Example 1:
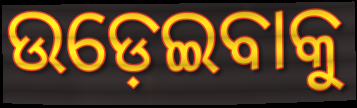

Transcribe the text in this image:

ଉଡ଼େଇବାକୁ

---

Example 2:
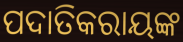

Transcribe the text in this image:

ପଦାତିକରାୟଙ୍କ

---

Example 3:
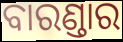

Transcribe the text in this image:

ବାରଣ୍ଡାର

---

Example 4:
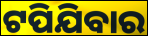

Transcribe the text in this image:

ଟପିଯିବାର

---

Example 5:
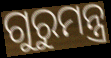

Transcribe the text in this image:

ଗୁରୁମନ୍ତ୍ର